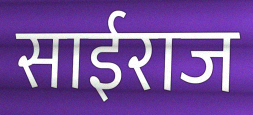
साईराज